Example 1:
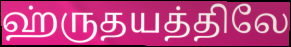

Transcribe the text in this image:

ஹ்ருதயத்திலே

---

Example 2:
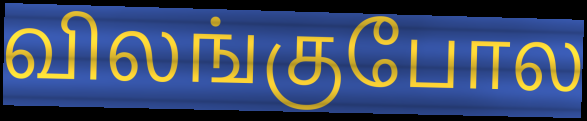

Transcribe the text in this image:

விலங்குபோல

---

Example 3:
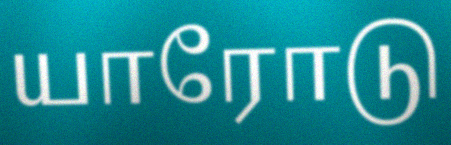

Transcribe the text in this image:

யாரோடு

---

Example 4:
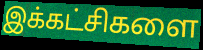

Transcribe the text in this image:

இக்கட்சிகளை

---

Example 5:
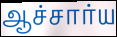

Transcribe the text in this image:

ஆச்சார்ய